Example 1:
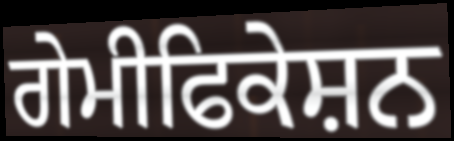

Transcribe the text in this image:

ਗੇਮੀਫਿਕੇਸ਼ਨ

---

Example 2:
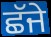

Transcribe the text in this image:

ਛੱਜੇ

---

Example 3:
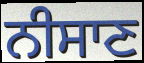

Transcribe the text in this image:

ਨੀਸਾਣ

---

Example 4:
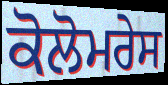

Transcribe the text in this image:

ਕੋਲੋਮਰੇਸ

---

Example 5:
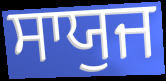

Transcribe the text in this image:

ਸਾਯੁਜ